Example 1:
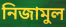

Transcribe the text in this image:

নিজামুল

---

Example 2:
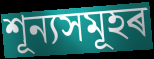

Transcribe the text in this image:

শূন্যসমূহৰ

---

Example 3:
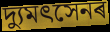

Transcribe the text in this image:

দ্যুমৎসেনৰ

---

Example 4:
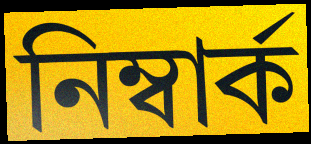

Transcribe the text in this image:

নিম্বাৰ্ক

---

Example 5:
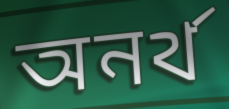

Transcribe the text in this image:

অনৰ্থ